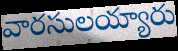
వారసులయ్యారు